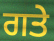
ਗਤੇ